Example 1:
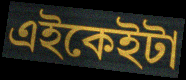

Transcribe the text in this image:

এইকেইটা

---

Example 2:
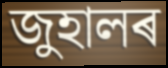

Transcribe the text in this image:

জুহালৰ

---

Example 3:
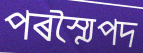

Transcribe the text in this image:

পৰস্মৈপদ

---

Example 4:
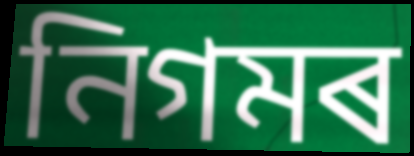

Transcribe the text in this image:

নিগমৰ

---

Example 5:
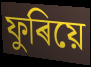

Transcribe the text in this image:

ফুৰিয়ে